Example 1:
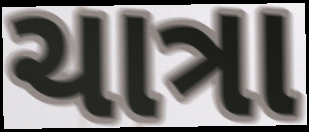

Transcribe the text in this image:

ચાત્રા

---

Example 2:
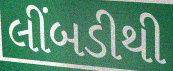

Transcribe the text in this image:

લીંબડીથી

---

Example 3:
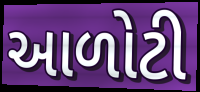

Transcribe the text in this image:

આળોટી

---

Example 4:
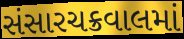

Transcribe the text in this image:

સંસારચક્રવાલમાં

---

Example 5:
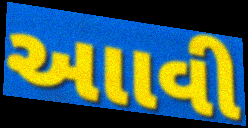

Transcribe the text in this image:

આાવી